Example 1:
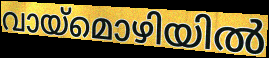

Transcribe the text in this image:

വായ്മൊഴിയിൽ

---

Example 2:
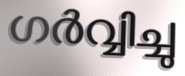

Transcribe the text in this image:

ഗർവ്വിച്ചു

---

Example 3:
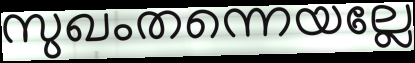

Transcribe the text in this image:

സുഖംതന്നെയല്ലേ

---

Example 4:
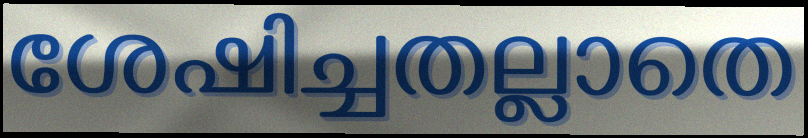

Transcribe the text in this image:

ശേഷിച്ചതല്ലാതെ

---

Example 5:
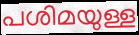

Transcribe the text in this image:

പശിമയുള്ള